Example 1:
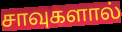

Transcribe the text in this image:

சாவுகளால்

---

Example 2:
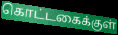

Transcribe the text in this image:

கொட்டகைக்குள்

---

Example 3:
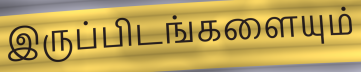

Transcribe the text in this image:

இருப்பிடங்களையும்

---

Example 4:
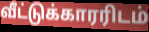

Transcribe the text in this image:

வீட்டுக்காரரிடம்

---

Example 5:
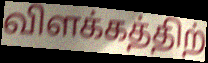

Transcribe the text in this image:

விளக்கத்திற்